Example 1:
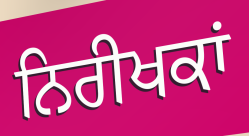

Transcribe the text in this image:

ਨਿਰੀਖਕਾਂ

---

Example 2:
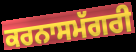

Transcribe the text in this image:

ਕਰਨਾਸਮੱਗਰੀ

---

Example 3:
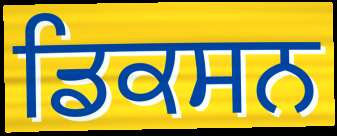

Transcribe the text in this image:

ਡਿਕਸਨ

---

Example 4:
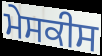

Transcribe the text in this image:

ਮੇਸਕੀਸ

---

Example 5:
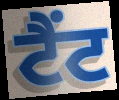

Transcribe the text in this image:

ਟੈਂਟ